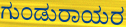
ಗುಂಡುರಾಯರ